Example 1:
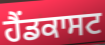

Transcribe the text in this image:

ਹੈਂਡਕਾਸਟ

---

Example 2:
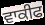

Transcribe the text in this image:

ਵਾਕੀਫ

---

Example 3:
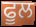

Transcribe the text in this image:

ਫੂਲ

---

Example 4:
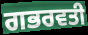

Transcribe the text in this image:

ਗਭਰਵਤੀ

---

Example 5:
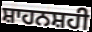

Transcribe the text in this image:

ਸ਼ਾਹਨਸ਼ਹੀ